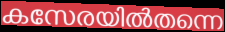
കസേരയിൽതന്നെ